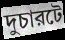
দুচারটে